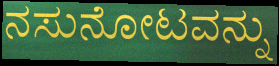
ನಸುನೋಟವನ್ನು